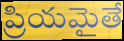
ప్రియమైతే